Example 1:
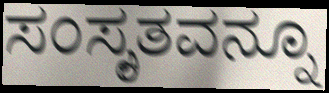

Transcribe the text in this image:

ಸಂಸ್ಕೃತವನ್ನೂ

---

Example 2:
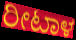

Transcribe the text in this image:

ರೀಟಾಳ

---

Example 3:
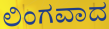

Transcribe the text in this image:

ಲಿಂಗವಾದ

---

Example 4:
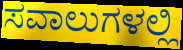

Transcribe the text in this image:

ಸವಾಲುಗಳಲ್ಲಿ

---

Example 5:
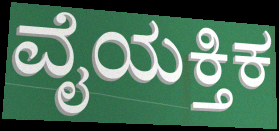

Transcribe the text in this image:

ವೈಯಕ್ತಿಕ